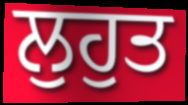
ਲੁਹੁਤ